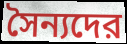
সৈন্যদের